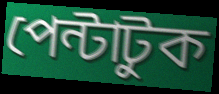
পেন্টাটুক